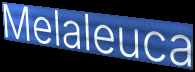
Melaleuca